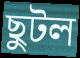
ছুটল